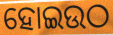
ହୋଇଉଠ